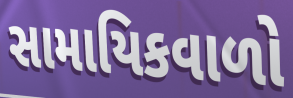
સામાયિકવાળો